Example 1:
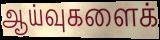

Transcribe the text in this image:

ஆய்வுகளைக்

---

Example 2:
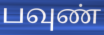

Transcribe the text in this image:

பவுண்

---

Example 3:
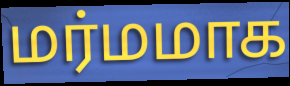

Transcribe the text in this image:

மர்மமாக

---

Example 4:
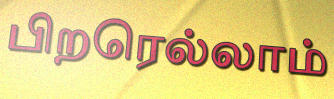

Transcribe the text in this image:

பிறரெல்லாம்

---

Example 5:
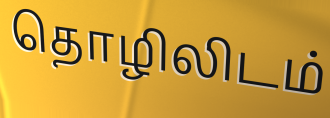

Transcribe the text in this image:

தொழிலிடம்